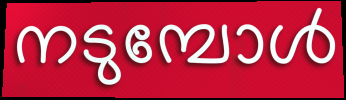
നടുമ്പോൾ